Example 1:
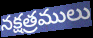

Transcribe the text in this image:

నక్షత్రములు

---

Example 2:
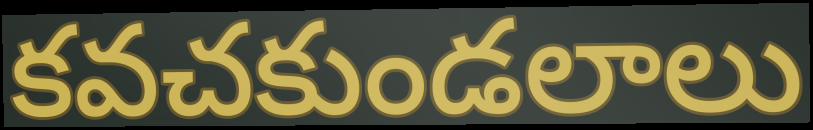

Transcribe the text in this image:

కవచకుండలాలు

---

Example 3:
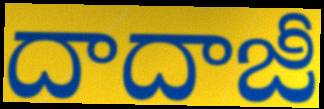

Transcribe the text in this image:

దాదాజీ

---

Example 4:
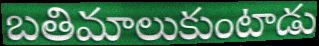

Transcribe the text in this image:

బతిమాలుకుంటాడు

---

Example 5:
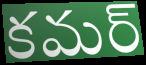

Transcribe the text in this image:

కమర్